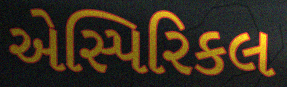
એસ્પિરિકલ